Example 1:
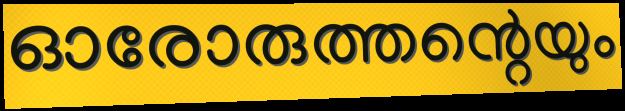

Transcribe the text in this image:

ഓരോരുത്തന്റെയും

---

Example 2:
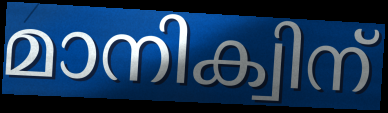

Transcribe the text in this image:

മാനിക്വിന്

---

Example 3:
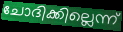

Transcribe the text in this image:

ചോദിക്കില്ലെന്ന്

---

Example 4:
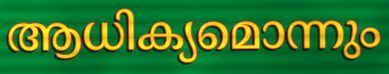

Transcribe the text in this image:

ആധിക്യമൊന്നും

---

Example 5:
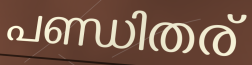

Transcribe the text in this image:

പണ്ഡിതര്